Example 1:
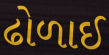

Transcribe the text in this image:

ઢોળાઈ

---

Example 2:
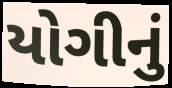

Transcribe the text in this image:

યોગીનું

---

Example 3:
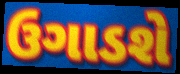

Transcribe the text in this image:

ઉગાડશે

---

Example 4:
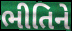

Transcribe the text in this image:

ભીતિને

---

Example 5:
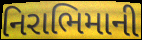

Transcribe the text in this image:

નિરાભિમાની